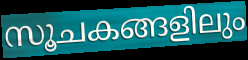
സൂചകങ്ങളിലും